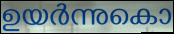
ഉയർന്നുകൊ